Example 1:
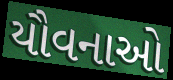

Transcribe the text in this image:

યૌવનાઓ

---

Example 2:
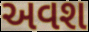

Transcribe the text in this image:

અવશ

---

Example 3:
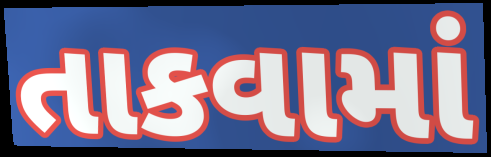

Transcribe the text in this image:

તાકવામાં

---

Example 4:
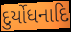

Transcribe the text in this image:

દુર્યોધનાદિ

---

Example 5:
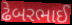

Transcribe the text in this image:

ઢેબરભાઈ